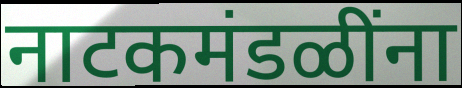
नाटकमंडळींना